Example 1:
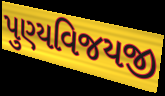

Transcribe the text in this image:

પુણ્યવિજયજી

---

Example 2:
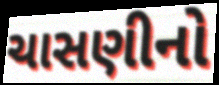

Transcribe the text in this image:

ચાસણીનો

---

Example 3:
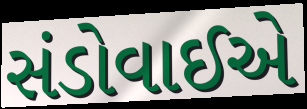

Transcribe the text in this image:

સંડોવાઈએ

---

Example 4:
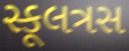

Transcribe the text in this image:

સ્કૂલત્રસ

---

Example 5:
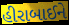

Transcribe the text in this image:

હીરાબાઈને